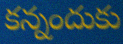
కన్నందుకు